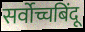
सर्वोच्चबिंदू